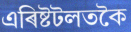
এৰিষ্টটলতকৈ